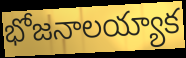
భోజనాలయ్యాక